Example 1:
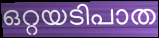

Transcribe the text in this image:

ഒറ്റയടിപാത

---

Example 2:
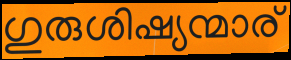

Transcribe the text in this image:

ഗുരുശിഷ്യന്മാര്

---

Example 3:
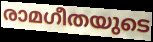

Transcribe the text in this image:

രാമഗീതയുടെ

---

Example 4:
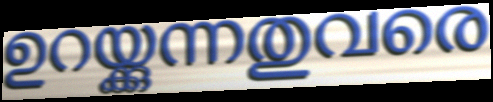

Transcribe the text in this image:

ഉറയ്ക്കുന്നതുവരെ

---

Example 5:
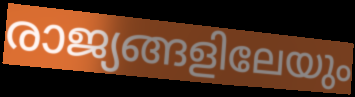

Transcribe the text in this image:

രാജ്യങ്ങളിലേയും